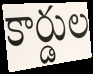
కార్డుల